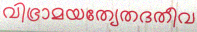
വിഭ്രാമയത്യേതദതീവ